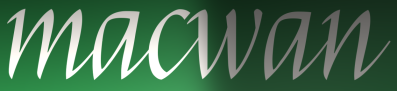
macwan